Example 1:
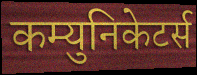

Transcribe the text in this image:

कम्युनिकेटर्स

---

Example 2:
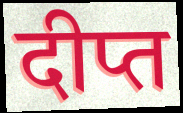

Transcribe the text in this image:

दीप्त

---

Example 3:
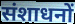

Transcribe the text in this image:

संशाधनों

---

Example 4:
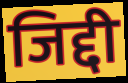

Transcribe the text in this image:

जिद्दी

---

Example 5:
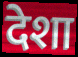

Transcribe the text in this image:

देशा